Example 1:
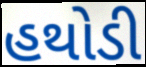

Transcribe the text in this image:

હથોડી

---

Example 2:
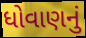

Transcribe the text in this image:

ધોવાણનું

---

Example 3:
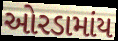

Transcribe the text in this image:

ઓરડામાંય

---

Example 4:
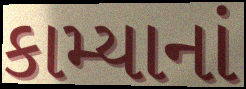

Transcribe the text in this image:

કામ્યાનાં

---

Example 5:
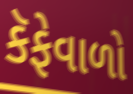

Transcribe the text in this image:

કૅફેવાળો